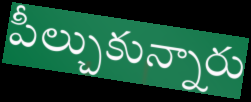
పీల్చుకున్నారు